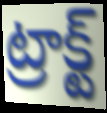
ట్రాక్ట్